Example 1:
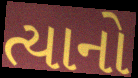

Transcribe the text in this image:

ત્યાનો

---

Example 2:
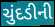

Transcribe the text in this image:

ચુંદડીની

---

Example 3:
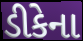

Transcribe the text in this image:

ડીકેના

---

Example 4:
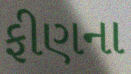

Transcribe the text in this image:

ફીણના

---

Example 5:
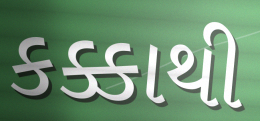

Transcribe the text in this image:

કક્કાથી